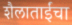
शैलाताईंचा